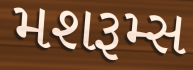
મશરૂમ્સ